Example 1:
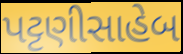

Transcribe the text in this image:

પટ્ટણીસાહેબ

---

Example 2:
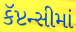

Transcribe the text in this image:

કૅપ્ટન્સીમાં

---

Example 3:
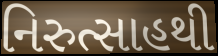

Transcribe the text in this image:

નિરુત્સાહથી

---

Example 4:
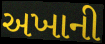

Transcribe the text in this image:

અખાની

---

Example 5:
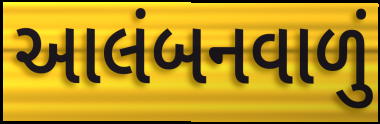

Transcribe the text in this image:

આલંબનવાળું